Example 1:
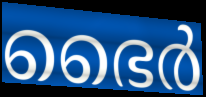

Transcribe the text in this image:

ഭൈർ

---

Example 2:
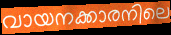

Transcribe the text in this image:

വായനക്കാരനിലെ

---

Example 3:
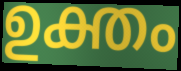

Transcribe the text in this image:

ഉക്തം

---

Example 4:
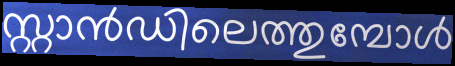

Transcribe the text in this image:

സ്റ്റാൻഡിലെത്തുമ്പോൾ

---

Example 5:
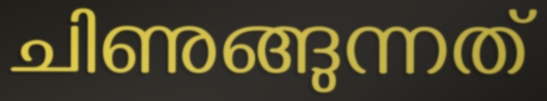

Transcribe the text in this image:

ചിണുങ്ങുന്നത്